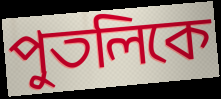
পুতলিকে